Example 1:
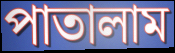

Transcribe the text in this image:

পাতালাম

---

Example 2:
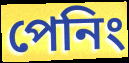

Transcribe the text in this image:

পেনিং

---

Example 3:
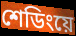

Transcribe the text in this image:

শেডিংয়ে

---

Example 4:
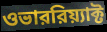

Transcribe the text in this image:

ওভাররিয়্যাক্ট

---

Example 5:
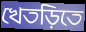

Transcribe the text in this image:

খেতড়িতে